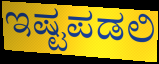
ಇಷ್ಟಪಡಲಿ